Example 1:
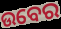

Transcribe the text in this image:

ଉବେର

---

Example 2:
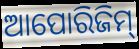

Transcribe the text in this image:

ଆପୋରିଜିମ୍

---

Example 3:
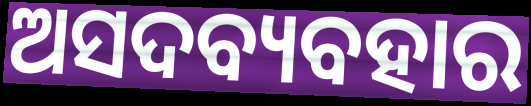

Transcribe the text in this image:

ଅସଦବ୍ୟବହାର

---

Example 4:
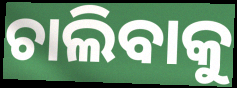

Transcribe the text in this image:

ଚାଲିବାକୁ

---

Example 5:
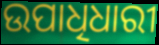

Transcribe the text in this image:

ଉପାଧିଧାରୀ